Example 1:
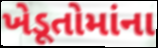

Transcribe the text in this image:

ખેડૂતોમાંના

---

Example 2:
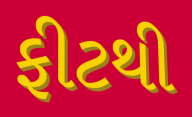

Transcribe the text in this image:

ફીટથી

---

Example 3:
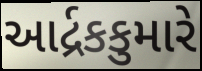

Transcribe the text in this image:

આર્દ્રકકુમારે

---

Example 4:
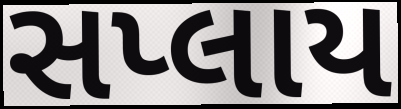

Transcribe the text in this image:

સપ્લાય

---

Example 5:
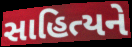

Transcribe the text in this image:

સાહિત્યને